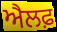
ਐਲਫ਼